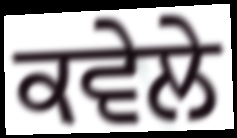
ਕਵੇਲੇ